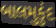
બાલમુકુંદ